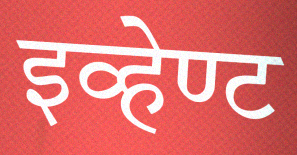
इव्हेण्ट